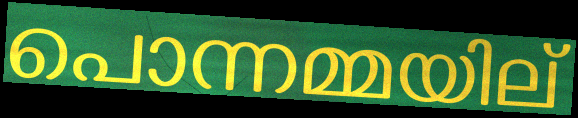
പൊന്നമ്മയില്